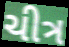
ચીત્ર